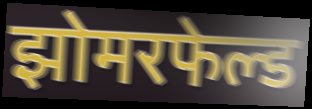
झोमरफेल्ड